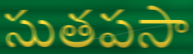
సుతపసా